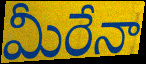
మీరేనా